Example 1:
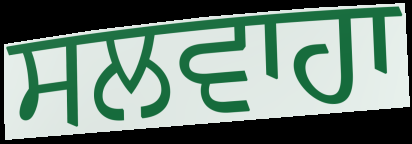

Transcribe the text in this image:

ਸਲਵਾਹਾ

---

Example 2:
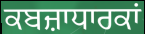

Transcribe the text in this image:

ਕਬਜ਼ਾਧਾਰਕਾਂ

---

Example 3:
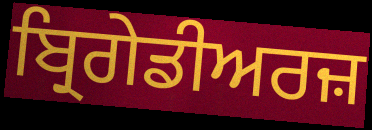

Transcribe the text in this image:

ਬ੍ਰਿਗੇਡੀਅਰਜ਼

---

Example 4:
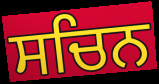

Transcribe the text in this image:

ਸਚਿਨ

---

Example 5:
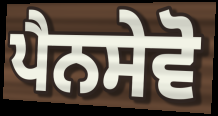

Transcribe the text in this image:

ਪੈਨਸੇਵੋ